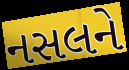
નસલને